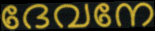
ദേവനേ